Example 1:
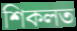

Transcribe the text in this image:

শিকলত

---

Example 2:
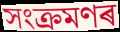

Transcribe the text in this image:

সংক্ৰমণৰ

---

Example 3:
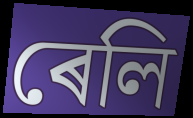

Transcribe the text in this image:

ৰেলি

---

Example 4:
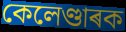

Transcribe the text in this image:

কেলেণ্ডাৰক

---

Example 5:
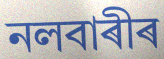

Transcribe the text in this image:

নলবাৰীৰ